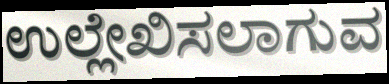
ಉಲ್ಲೇಖಿಸಲಾಗುವ